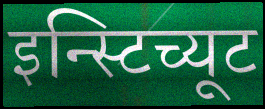
इन्स्टिच्यूट